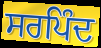
ਸਰਪਿੰਦ